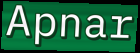
Apnar